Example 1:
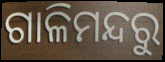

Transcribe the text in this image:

ଗାଳିମନ୍ଦରୁ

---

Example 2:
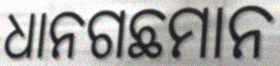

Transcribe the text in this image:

ଧାନଗଛମାନ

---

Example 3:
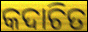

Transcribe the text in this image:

କଦାଚିତ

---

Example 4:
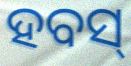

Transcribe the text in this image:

ହବସ୍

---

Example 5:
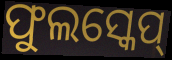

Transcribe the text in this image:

ଫୁଲସ୍କେପ୍